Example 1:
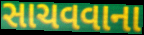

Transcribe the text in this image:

સાચવવાના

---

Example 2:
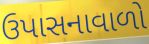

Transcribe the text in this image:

ઉપાસનાવાળો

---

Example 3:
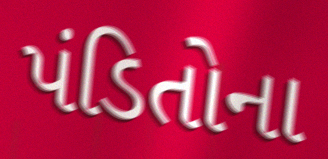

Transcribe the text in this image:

પંડિતોના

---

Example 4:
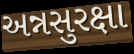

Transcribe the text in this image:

અન્નસુરક્ષા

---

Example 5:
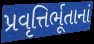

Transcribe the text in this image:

પ્રવૃત્તિર્ભૂતાનાં